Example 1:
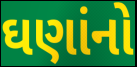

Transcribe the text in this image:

ઘણાંનો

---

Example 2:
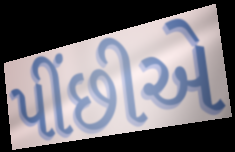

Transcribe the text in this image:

પીંછીએ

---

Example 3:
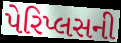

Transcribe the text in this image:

પેરિપ્લસની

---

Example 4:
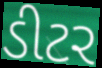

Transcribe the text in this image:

ડીટર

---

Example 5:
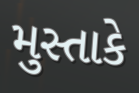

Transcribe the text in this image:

મુસ્તાકે